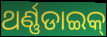
ଥର୍ଣ୍ଣଡାଇକ୍